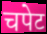
चपेट